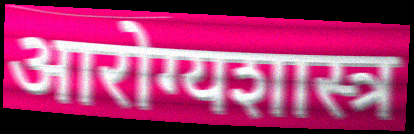
आरोग्यशास्त्र